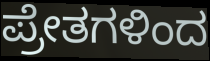
ಪ್ರೇತಗಳಿಂದ